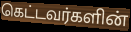
கெட்டவர்களின்